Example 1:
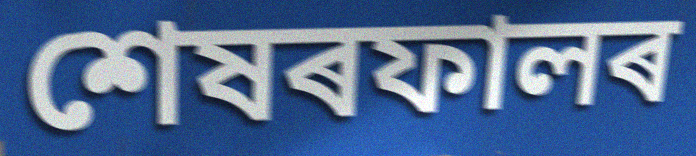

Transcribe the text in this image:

শেষৰফালৰ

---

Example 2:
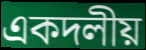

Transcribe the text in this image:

একদলীয়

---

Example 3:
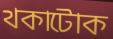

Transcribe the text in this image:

থকাটোক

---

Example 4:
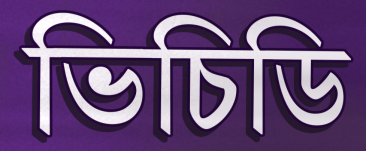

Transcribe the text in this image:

ভিচিডি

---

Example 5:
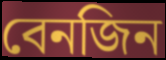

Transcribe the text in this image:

বেনজিন